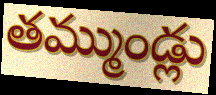
తమ్ముండ్లు